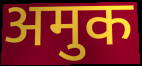
अमुक